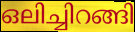
ഒലിച്ചിറങ്ങി